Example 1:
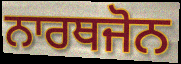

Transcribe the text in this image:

ਨਾਰਥਜੋਨ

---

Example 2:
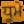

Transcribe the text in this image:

ਧੂਮੇ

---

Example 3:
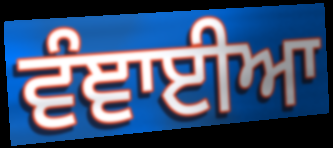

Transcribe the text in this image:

ਵੰਞਾਈਆ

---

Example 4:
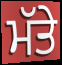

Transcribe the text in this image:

ਮੱਤੇ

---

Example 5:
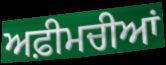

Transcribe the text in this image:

ਅਫ਼ੀਮਚੀਆਂ